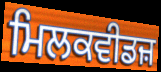
ਮਿਲਕਵੀਡਜ਼